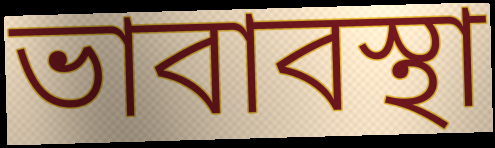
ভাবাবস্থা